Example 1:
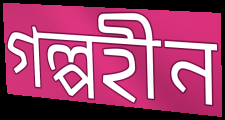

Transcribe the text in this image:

গল্পহীন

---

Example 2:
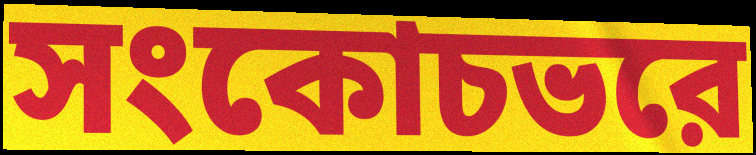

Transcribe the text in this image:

সংকোচভরে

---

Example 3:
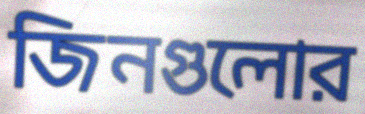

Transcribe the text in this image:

জিনগুলোর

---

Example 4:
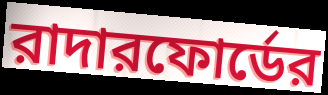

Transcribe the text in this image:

রাদারফোর্ডের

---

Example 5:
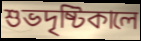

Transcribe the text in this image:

শুভদৃষ্টিকালে